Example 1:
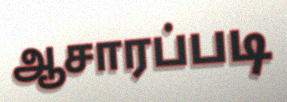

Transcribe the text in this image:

ஆசாரப்படி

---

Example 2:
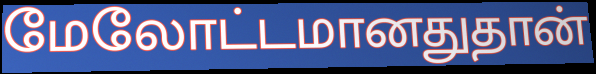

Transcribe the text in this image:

மேலோட்டமானதுதான்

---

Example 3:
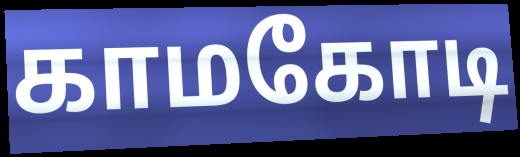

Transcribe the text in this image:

காமகோடி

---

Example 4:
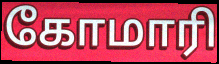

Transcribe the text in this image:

கோமாரி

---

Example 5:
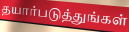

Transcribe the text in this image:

தயார்படுத்துங்கள்